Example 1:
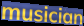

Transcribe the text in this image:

musician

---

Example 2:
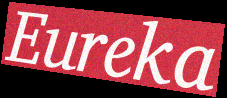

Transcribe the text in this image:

Eureka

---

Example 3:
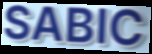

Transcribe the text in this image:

SABIC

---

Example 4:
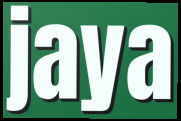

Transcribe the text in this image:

jaya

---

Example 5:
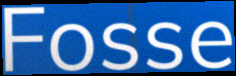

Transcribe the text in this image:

Fosse